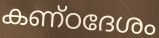
കണ്ഠദേശം